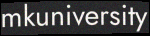
mkuniversity